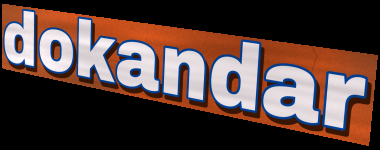
dokandar